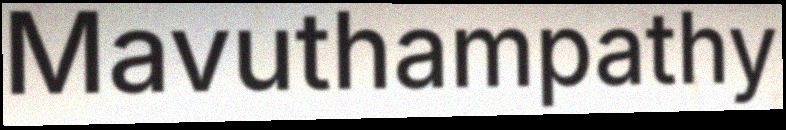
Mavuthampathy